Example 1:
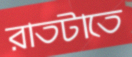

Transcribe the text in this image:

রাতটাতে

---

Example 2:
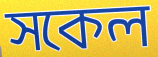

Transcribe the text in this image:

সকেল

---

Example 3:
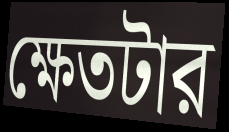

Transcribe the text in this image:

ক্ষেতটার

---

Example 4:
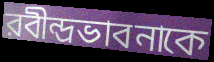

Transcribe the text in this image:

রবীন্দ্রভাবনাকে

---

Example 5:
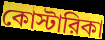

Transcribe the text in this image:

কোস্টারিকা